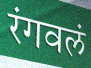
रंगवलं